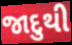
જાદુથી